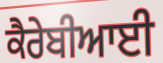
ਕੈਰੇਬੀਆਈ